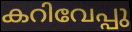
കറിവേപ്പു